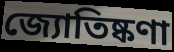
জ্যোতিষ্কণা